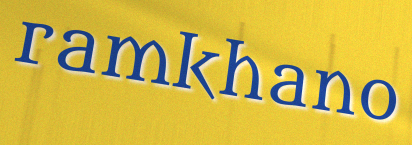
ramkhano